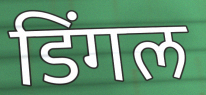
डिंगल